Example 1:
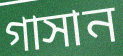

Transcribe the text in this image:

গাসান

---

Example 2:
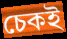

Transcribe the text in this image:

চেকই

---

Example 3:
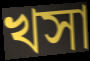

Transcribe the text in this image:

খসা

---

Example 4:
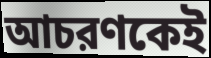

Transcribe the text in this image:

আচরণকেই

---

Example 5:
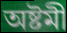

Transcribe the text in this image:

অষ্টমী